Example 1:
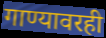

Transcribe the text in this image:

गाण्यावरही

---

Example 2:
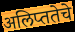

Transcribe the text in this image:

अलिप्ततेचे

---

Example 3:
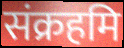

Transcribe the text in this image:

संक्रहमि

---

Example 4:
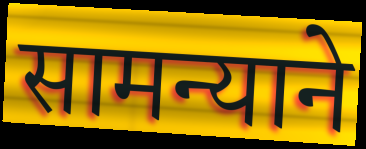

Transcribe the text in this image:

सामन्याने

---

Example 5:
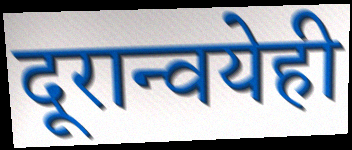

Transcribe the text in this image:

दूरान्वयेही